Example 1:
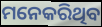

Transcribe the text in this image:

ମନେକରିଥିବ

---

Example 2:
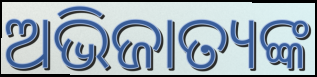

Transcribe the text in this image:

ଅଭିଜାତ୍ୟଙ୍କ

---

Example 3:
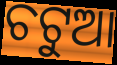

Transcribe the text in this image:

ଚଟୁଆ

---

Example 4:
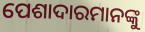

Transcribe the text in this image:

ପେଶାଦାରମାନଙ୍କୁ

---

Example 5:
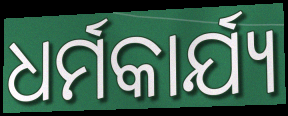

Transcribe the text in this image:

ଧର୍ମକାର୍ଯ୍ୟ